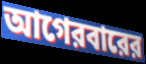
আগেরবারের